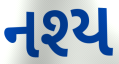
નશ્ય